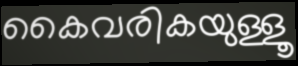
കൈവരികയുള്ളൂ